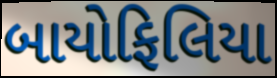
બાયોફિલિયા